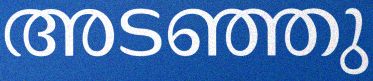
അടഞ്ഞു